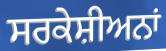
ਸਰਕੇਸ਼ੀਅਨਾਂ